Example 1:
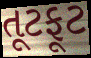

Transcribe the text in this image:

તૂટફૂટ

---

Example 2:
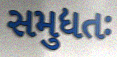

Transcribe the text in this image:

સમુદ્યતઃ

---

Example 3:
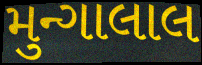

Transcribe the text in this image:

મુન્ગાલાલ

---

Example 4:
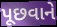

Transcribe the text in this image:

પૂછવાને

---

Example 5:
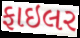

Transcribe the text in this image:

ફાઇલર